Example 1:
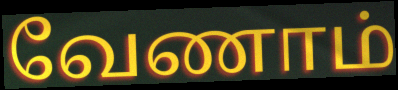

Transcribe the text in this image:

வேணாம்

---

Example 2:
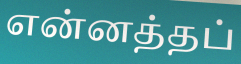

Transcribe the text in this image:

என்னத்தப்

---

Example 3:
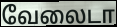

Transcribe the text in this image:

வேலைடா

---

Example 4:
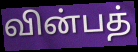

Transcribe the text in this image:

வின்பத்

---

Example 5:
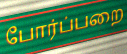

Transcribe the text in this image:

போர்ப்பறை